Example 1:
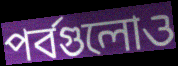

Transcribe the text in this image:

পর্বগুলোও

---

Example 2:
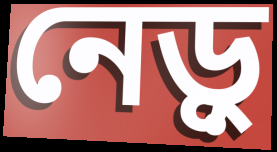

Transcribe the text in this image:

নেড়ু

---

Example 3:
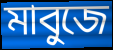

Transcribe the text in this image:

মাবুজে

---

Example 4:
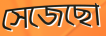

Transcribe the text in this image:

সেজেছো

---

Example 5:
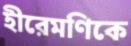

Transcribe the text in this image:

হীরেমণিকে